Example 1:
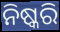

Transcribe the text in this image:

ନିଷ୍କରି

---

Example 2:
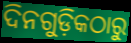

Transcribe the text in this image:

ଦିନଗୁଡ଼ିକଠାରୁ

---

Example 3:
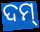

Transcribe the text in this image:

ଦମ୍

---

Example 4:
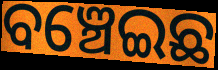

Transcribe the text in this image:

ବଞ୍ଚେଇଛ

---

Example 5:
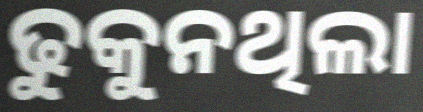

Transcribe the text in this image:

ଢୁକୁନଥିଲା